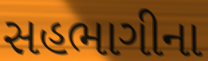
સહભાગીના